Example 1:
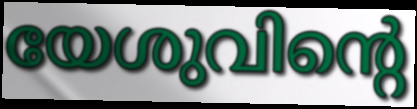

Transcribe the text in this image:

യേശുവിന്റെ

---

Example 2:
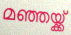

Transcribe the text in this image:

മഞ്ഞയ്ക്ക്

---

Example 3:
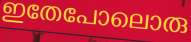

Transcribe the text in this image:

ഇതേപോലൊരു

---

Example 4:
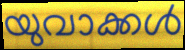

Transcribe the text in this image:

യുവാക്കൾ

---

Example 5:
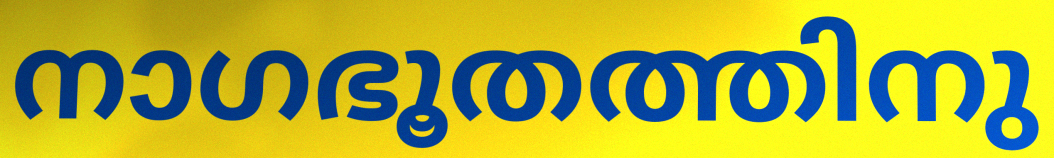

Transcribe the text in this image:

നാഗഭൂതത്തിനു